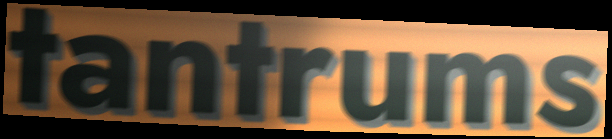
tantrums